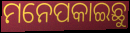
ମନେପକାଇଛୁ